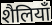
शैलियाँ